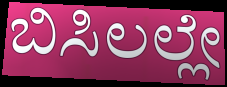
ಬಿಸಿಲಲ್ಲೇ